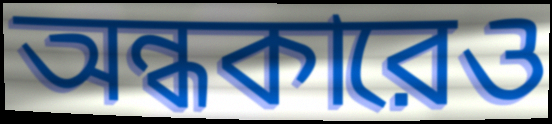
অন্ধকারেও